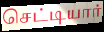
செட்டியார்